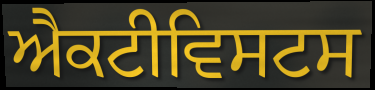
ਐਕਟੀਵਿਸਟਸ